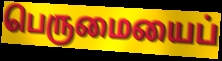
பெருமையைப்